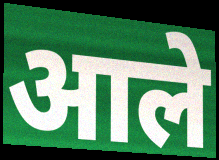
आले